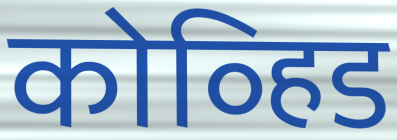
कोव्हिड